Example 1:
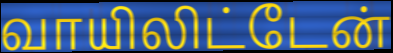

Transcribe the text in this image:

வாயிலிட்டேன்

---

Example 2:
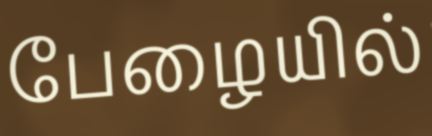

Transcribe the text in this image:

பேழையில்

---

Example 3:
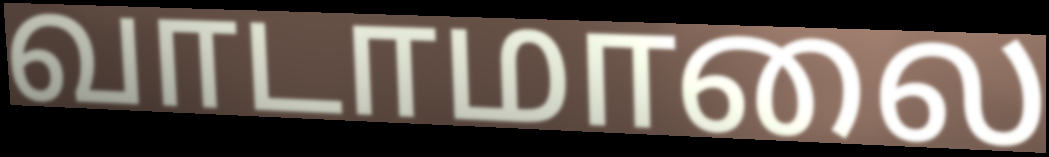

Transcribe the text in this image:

வாடாமாலை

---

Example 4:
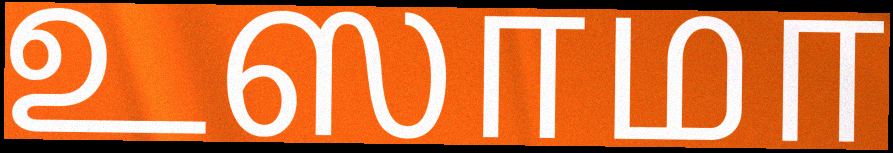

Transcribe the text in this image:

உஸாமா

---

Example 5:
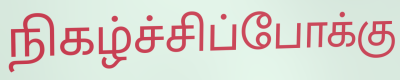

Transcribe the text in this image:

நிகழ்ச்சிப்போக்கு